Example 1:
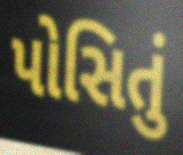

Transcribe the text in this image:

પોસિતું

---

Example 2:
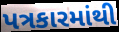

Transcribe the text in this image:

પત્રકારમાંથી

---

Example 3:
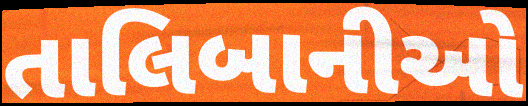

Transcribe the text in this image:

તાલિબાનીઓ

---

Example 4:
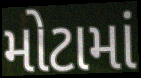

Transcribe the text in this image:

મોટામાં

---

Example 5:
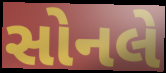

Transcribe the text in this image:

સોનલે